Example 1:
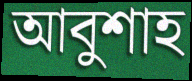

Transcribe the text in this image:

আবুশাহ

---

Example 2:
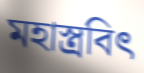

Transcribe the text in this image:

মহাস্ত্রবিৎ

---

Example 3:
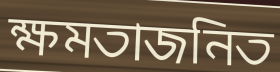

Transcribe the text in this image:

ক্ষমতাজনিত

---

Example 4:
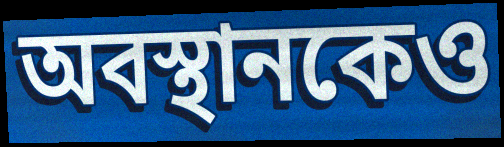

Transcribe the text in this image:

অবস্থানকেও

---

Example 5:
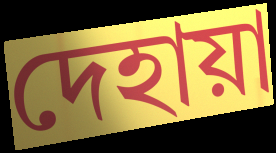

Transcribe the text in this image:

দেহায়া